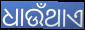
ଧାଉଁଥାଏ